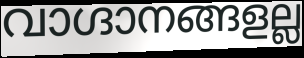
വാഗ്ദാനങ്ങളല്ല